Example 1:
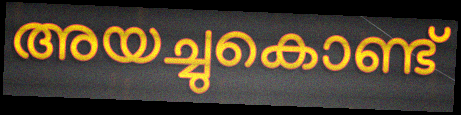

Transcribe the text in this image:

അയച്ചുകൊണ്ട്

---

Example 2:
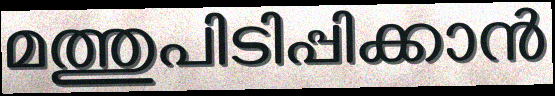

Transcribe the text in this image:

മത്തുപിടിപ്പിക്കാൻ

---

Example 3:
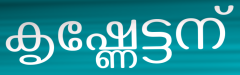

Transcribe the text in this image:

കൃഷ്ണേട്ടന്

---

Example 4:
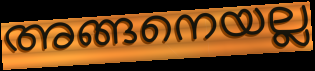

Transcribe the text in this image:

അങ്ങനെയല്ല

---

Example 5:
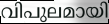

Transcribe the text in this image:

വിപുലമായി